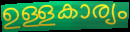
ഉള്ളകാര്യം